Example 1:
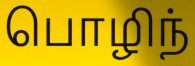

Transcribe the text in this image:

பொழிந்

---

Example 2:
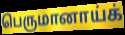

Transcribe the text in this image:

பெருமானாய்க்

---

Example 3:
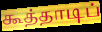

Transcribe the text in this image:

கூத்தாடிப்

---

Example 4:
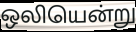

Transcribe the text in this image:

ஒலியென்று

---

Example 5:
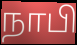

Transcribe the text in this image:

நாபி